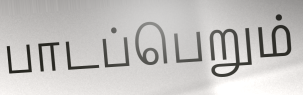
பாடப்பெறும்